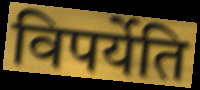
विपर्येति